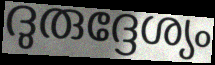
ദുരുദ്ദേശ്യം